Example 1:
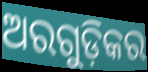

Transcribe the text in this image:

ଅରଗୁଡ଼ିକର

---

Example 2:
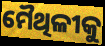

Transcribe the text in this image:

ମୈଥିଳୀକୁ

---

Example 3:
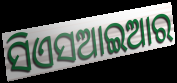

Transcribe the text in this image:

ସିଏସଆଇଆର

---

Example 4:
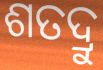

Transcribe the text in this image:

ଶତଦ୍ରୁ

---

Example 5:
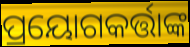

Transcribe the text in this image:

ପ୍ରୟୋଗକର୍ତ୍ତାଙ୍କ